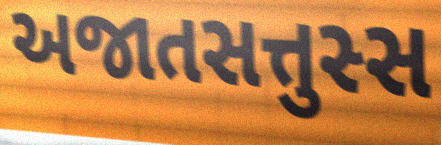
અજાતસત્તુસ્સ